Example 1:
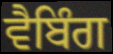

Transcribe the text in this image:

ਵੈਬਿੰਗ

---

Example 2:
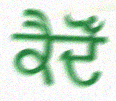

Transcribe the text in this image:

ਕੈਦੋਁ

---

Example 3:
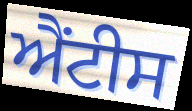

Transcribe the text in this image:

ਐਂਟੀਸ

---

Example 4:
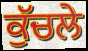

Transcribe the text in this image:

ਕੁੱਚਲੇ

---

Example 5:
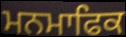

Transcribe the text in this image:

ਮਨਮਾਫਿਕ